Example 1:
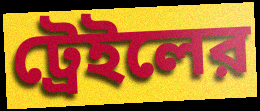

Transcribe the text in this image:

ট্রেইলের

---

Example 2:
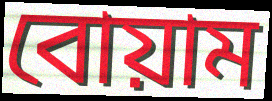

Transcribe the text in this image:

বোয়াম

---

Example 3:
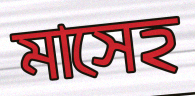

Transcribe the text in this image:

মাসেহ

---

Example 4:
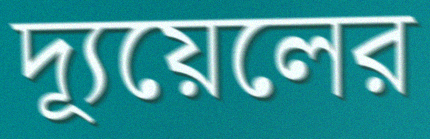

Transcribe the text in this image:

দ্যূয়েলের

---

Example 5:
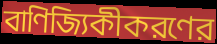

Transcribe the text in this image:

বাণিজ্যিকীকরণের